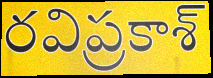
రవిప్రకాశ్